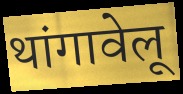
थांगावेलू